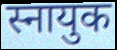
स्नायुक